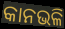
କାନଭଳି